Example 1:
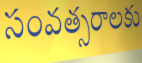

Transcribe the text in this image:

సంవత్సరాలకు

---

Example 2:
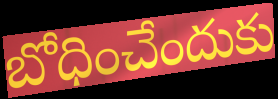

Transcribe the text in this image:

బోధించేందుకు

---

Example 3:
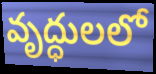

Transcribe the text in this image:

వృద్ధులలో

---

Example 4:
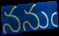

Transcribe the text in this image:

ననుఁ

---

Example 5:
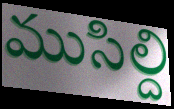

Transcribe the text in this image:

ముసిల్ది